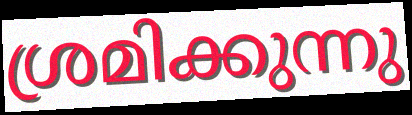
ശ്രമിക്കുന്നു